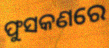
ଫୁସକଣରେ